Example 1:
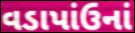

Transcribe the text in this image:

વડાપાંઉનાં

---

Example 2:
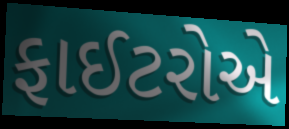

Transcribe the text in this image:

ફાઈટરોએ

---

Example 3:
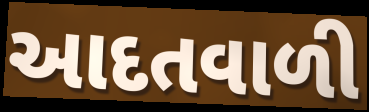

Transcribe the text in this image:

આદતવાળી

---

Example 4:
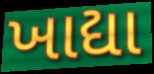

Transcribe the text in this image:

ખાદ્યા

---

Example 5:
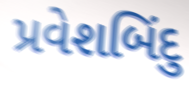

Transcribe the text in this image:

પ્રવેશબિંદુ